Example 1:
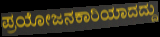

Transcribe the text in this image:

ಪ್ರಯೋಜನಕಾರಿಯಾದದ್ದು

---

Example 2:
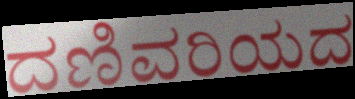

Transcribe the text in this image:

ದಣಿವರಿಯದ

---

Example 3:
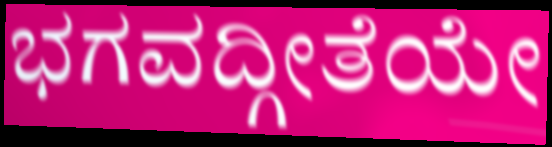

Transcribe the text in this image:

ಭಗವದ್ಗೀತೆಯೇ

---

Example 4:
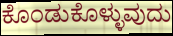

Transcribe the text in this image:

ಕೊಂಡುಕೊಳ್ಳುವುದು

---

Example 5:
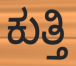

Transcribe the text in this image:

ಕುತ್ತಿ